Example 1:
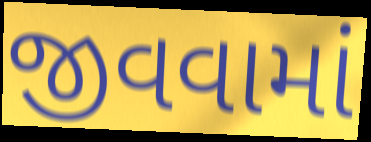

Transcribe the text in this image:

જીવવામાં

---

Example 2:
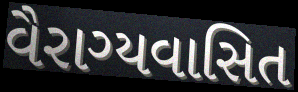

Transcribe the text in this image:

વૈરાગ્યવાસિત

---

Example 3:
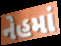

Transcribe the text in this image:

નેહમાં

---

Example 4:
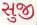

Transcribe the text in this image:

સુજી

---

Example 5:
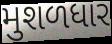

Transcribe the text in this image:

મુશળધાર